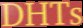
DHTs